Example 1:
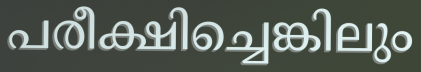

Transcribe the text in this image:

പരീക്ഷിച്ചെങ്കിലും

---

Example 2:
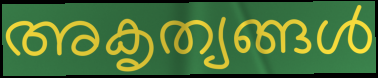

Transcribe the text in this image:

അകൃത്യങ്ങൾ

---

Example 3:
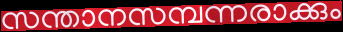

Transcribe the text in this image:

സന്താനസമ്പന്നരാക്കും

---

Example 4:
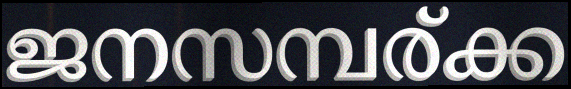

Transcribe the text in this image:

ജനസമ്പര്ക്ക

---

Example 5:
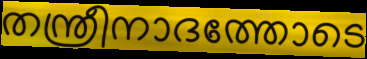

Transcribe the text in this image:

തന്ത്രീനാദത്തോടെ